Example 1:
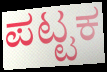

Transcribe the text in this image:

ಪಟ್ಟಕ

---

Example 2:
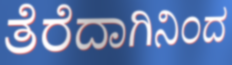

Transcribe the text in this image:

ತೆರೆದಾಗಿನಿಂದ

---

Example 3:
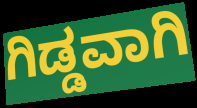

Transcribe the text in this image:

ಗಿಡ್ಡವಾಗಿ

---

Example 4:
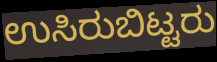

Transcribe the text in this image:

ಉಸಿರುಬಿಟ್ಟರು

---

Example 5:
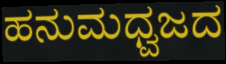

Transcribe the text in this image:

ಹನುಮಧ್ವಜದ